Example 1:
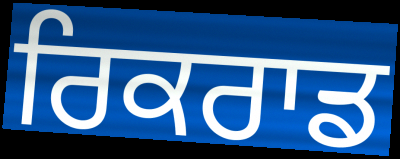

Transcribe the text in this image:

ਰਿਕਰਾਡ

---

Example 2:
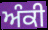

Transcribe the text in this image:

ਅੰਕੀ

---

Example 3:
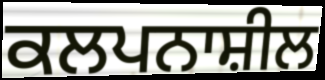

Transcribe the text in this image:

ਕਲਪਨਾਸ਼ੀਲ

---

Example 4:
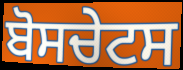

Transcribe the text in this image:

ਬੋਸਚੇਟਸ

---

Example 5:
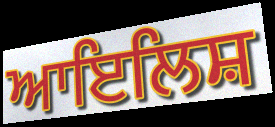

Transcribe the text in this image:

ਆਇਲਿਸ਼